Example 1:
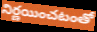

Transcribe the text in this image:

నిర్ణయించటంతో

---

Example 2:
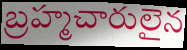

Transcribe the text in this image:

బ్రహ్మచారులైన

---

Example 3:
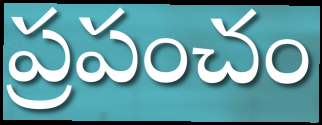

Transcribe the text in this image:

ప్రపంచం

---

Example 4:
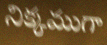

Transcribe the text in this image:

నిక్కముగా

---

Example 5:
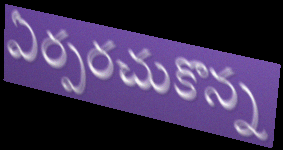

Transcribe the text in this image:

ఏర్పరచుకొన్న